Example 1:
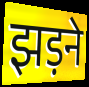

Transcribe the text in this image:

झड़ने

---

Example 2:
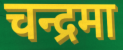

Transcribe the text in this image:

चन्द्रमा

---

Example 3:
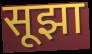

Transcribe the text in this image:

सूझा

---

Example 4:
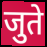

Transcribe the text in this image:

जुते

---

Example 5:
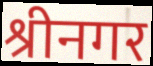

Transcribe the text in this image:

श्रीनगर